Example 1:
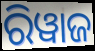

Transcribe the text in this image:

ରିୱାଜ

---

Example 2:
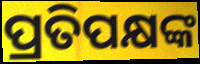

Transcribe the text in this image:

ପ୍ରତିପକ୍ଷଙ୍କ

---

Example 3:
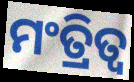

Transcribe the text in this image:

ମଂତ୍ରିତ୍ୱ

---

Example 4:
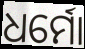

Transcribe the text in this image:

ଧର୍ମୋ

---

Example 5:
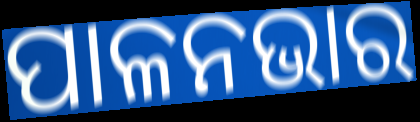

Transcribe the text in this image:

ପାଳନଭାର